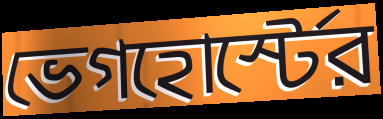
ভেগহোর্স্টের